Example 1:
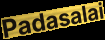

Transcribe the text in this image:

Padasalai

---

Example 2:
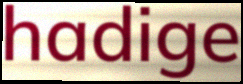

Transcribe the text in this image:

hadige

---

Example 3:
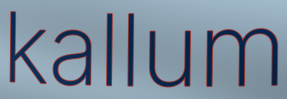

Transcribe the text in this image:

kallum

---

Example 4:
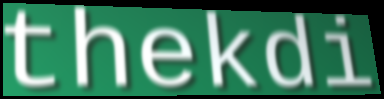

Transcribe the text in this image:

thekdi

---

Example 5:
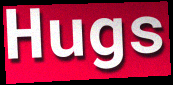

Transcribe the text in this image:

Hugs